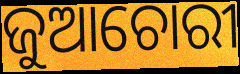
ଜୁଆଚୋରୀ